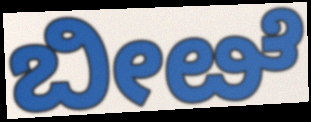
ಬೀೞೆ